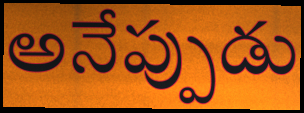
అనేప్పుడు